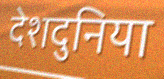
देशदुनिया